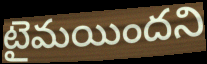
టైమయిందని